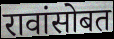
रावांसोबत